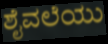
ಶೈವಲೆಯು